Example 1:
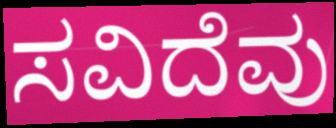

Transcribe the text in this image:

ಸವಿದೆವು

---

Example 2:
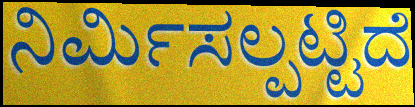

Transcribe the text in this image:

ನಿರ್ಮಿಸಲ್ಪಟ್ಟಿದೆ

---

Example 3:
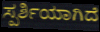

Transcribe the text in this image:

ಸ್ಪರ್ಶಿಯಾಗಿದೆ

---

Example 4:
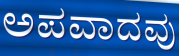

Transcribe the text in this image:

ಅಪವಾದವು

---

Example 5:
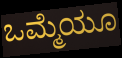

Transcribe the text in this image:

ಒಮ್ಮೆಯೂ